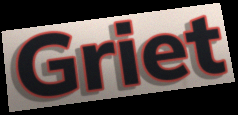
Griet